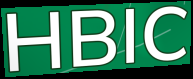
HBIC